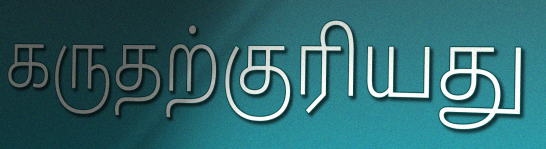
கருதற்குரியது